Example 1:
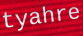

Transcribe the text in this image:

tyahre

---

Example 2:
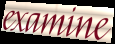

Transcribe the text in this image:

examine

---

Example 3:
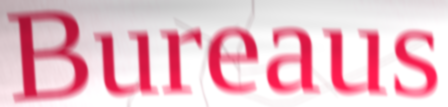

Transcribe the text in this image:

Bureaus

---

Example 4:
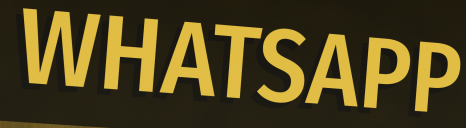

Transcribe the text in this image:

WHATSAPP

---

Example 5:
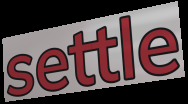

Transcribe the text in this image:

settle